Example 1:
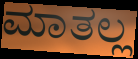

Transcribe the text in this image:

ಮಾತಲ್ಲ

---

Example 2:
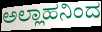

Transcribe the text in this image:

ಅಲ್ಲಾಹನಿಂದ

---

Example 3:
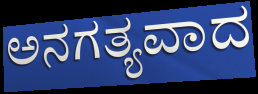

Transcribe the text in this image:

ಅನಗತ್ಯವಾದ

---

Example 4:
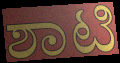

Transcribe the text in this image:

ಶಾಟಿ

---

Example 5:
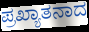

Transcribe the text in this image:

ಪ್ರಖ್ಯಾತನಾದ